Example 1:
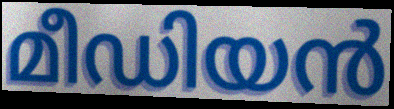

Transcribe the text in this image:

മീഡിയൻ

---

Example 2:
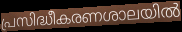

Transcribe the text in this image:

പ്രസിദ്ധീകരണശാലയിൽ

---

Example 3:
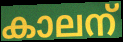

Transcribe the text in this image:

കാലന്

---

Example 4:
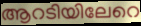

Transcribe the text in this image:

ആറടിയിലേറെ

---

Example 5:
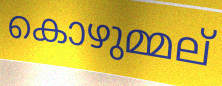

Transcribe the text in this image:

കൊഴുമ്മല്